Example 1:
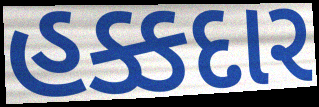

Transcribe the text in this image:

હક્કદાર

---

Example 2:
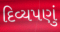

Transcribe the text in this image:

દિવ્યપણું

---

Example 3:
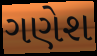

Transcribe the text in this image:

ગણેશ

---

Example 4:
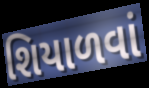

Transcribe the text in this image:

શિયાળવાં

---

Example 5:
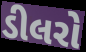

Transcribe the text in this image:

ડીલરો